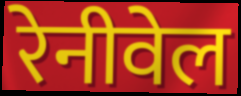
रेनीवेल